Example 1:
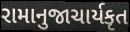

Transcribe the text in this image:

રામાનુજાચાર્યકૃત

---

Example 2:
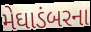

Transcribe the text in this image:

મેઘાડંબરના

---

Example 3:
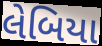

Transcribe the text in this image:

લેબિયા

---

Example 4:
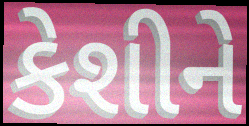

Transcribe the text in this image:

કેશીને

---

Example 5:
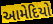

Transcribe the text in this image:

આમેદિયો